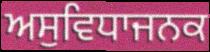
ਅਸੁਵਿਧਾਜਨਕ